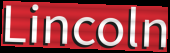
Lincoln